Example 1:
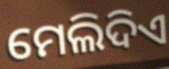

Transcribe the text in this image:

ମେଲିଦିଏ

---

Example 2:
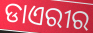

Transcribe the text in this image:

ଡାଏରୀର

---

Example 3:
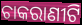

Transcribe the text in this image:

ଚାକରାଣୀଟି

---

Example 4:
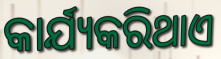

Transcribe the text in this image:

କାର୍ଯ୍ୟକରିଥାଏ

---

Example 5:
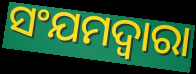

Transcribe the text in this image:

ସଂଯମଦ୍ୱାରା